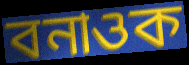
বনাওক